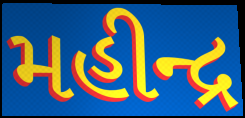
મહીન્દ્ર